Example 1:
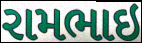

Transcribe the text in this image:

રામભાઇ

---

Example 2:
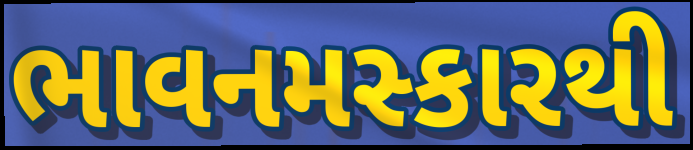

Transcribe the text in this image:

ભાવનમસ્કારથી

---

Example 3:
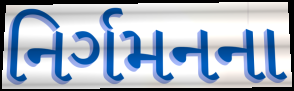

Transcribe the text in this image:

નિર્ગમનના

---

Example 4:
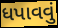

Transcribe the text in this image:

ધપાવવું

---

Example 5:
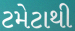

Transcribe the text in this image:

ટમેટાથી